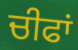
ਚੀਫਾਂ